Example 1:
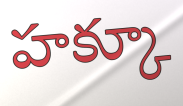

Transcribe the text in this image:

హక్కూ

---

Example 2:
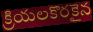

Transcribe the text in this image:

క్రియలకొరకైన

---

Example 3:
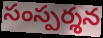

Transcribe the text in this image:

సంస్పర్శన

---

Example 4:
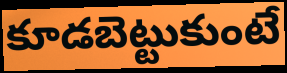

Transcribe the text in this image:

కూడబెట్టుకుంటే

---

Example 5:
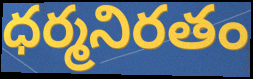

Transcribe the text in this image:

ధర్మనిరతం